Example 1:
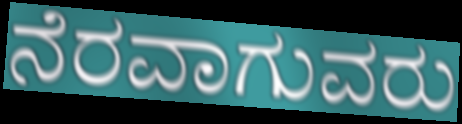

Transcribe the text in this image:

ನೆರವಾಗುವರು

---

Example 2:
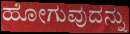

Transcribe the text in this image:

ಹೋಗುವುದನ್ನು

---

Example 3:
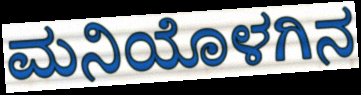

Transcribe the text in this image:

ಮನಿಯೊಳಗಿನ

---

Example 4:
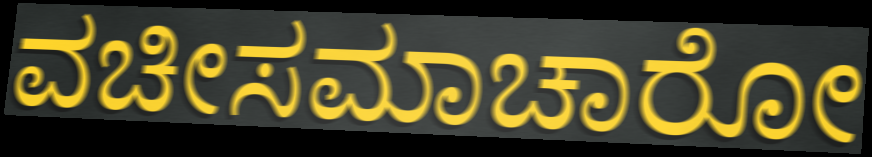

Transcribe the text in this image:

ವಚೀಸಮಾಚಾರೋ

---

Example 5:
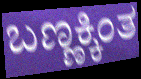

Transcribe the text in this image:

ಬಣ್ಣಕ್ಕಿಂತ